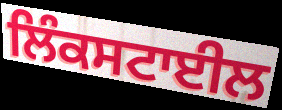
ਲਿੰਕਸਟਾਈਲ